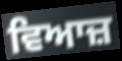
ਵਿਆਜ਼